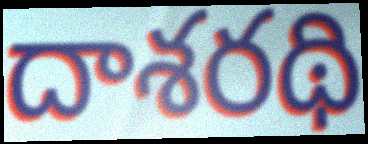
దాశరథి